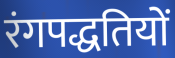
रंगपद्धतियों